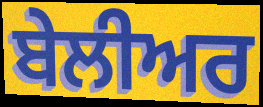
ਬੇਲੀਅਰ